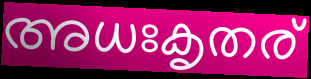
അധഃകൃതര്